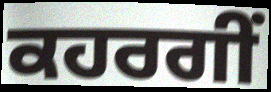
ਕਹਰਗੀਂ